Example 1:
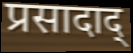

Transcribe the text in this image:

प्रसादाद्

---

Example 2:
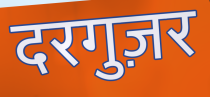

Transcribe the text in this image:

दरगुज़र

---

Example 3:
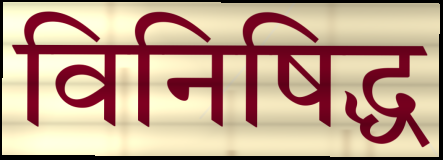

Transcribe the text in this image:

विनिषिद्ध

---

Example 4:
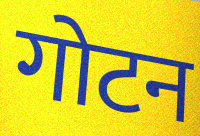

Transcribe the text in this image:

गोटन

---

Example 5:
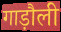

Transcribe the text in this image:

गाड़ौली